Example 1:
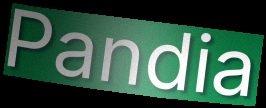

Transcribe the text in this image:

Pandia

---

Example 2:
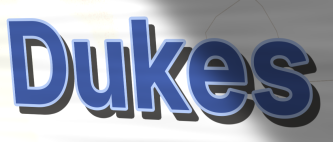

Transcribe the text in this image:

Dukes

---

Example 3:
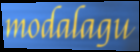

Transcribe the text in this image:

modalagu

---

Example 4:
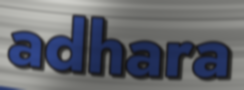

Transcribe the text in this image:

adhara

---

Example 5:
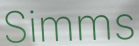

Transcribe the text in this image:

Simms